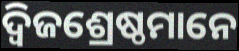
ଦ୍ୱିଜଶ୍ରେଷ୍ଠମାନେ